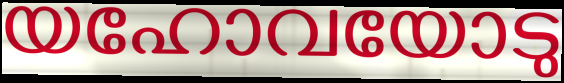
യഹോവയോടു